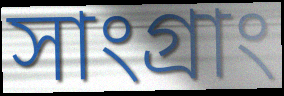
সাংগ্রাং